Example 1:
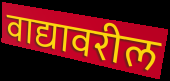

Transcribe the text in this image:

वाद्यावरील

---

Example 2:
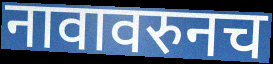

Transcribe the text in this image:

नावावरुनच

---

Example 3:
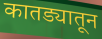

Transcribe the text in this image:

कातड्यातून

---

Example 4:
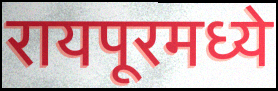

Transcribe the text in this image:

रायपूरमध्ये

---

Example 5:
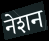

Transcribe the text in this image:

नेशन